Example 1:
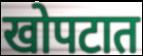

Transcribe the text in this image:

खोपटात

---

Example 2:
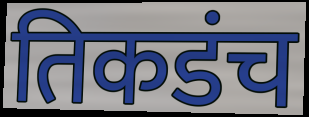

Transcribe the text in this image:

तिकडंच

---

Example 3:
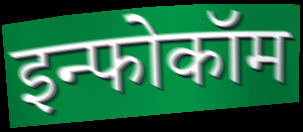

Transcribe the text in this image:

इन्फोकॉम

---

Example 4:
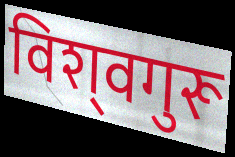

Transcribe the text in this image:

विश्वगुरू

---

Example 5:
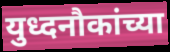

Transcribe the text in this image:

युध्दनौकांच्या